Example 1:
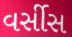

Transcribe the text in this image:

વર્સીસ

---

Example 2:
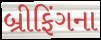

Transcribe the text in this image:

બ્રીફિંગના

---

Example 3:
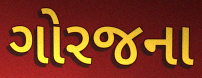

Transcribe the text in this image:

ગોરજના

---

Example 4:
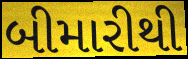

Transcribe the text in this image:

બીમારીથી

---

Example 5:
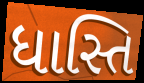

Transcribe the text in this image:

ધાસ્તિ